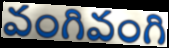
వంగివంగి